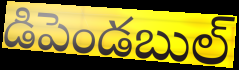
డిపెండబుల్